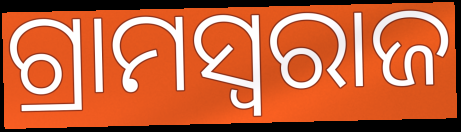
ଗ୍ରାମସ୍ବରାଜ